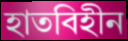
হাতবিহীন